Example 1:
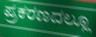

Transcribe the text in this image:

ಪ್ರಕರಣದಲ್ಲೂ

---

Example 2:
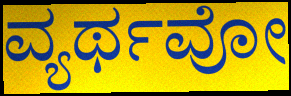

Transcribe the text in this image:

ವ್ಯರ್ಥವೋ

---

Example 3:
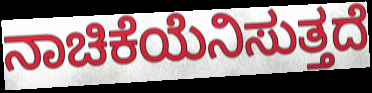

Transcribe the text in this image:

ನಾಚಿಕೆಯೆನಿಸುತ್ತದೆ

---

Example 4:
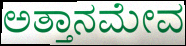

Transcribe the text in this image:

ಅತ್ತಾನಮೇವ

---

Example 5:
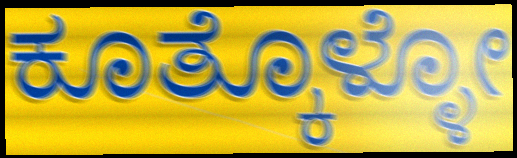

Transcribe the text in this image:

ಕೂತ್ಕೊಳ್ಳೋ